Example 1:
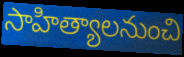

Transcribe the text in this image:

సాహిత్యాలనుంచి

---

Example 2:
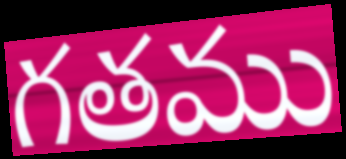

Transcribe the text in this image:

గతము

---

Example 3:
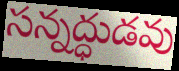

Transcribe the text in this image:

సన్నద్ధుడవు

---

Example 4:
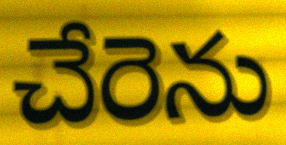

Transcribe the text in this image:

చేరెను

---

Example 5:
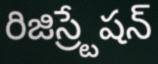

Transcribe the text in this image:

రిజిస్ర్టేషన్